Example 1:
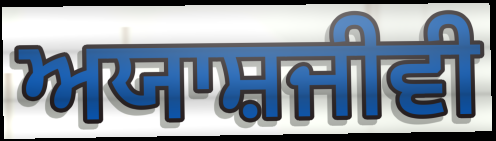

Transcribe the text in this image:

ਅਯਾਸ਼ਜੀਵੀ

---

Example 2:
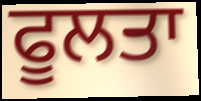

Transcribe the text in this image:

ਫੂਲਤਾ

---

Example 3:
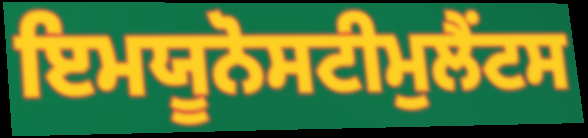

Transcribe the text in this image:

ਇਮਯੂਨੋਸਟੀਮੁਲੈਂਟਸ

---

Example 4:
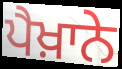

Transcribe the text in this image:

ਪੈਖ਼ਾਨੇ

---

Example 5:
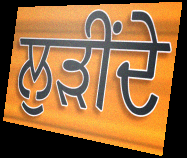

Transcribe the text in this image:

ਲੁੜੀਂਦੇ